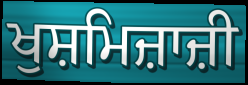
ਖੁਸ਼ਮਿਜ਼ਾਜ਼ੀ